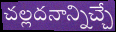
చల్లదనాన్నిచ్చే